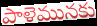
పాళెమునకు